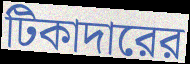
টিকাদারের